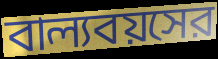
বাল্যবয়সের